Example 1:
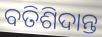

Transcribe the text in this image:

ବତିଶିଦାନ୍ତ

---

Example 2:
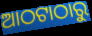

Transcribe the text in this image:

ଆଠଟାଠାରୁ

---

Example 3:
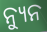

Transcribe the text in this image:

ନ୍ୟୁନ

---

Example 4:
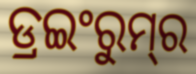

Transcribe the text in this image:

ଡ୍ରଇଂରୁମ୍‌ର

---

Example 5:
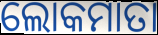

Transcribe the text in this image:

ଲୋକମାତା